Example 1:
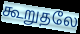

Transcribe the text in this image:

கூறுதலே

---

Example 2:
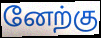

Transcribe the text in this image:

னேற்கு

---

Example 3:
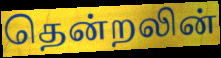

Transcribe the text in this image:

தென்றலின்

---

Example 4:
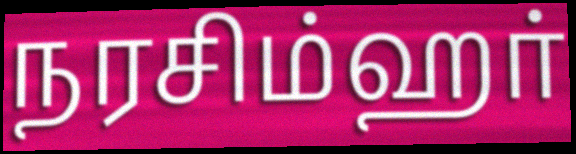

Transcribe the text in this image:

நரசிம்ஹர்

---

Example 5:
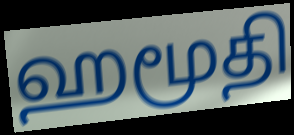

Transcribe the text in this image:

ஹமூதி